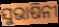
ସୁଭାଷିନୀ